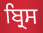
ਬ੍ਰਿਸ